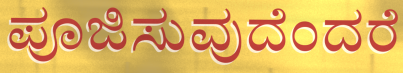
ಪೂಜಿಸುವುದೆಂದರೆ